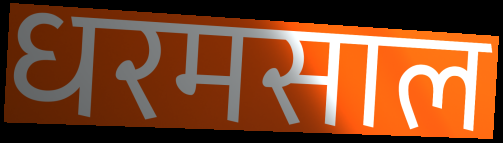
धरमसाल